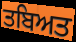
ਤਬਿਅਤ